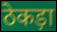
ठेकड़ा